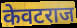
केवटराज